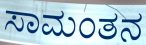
ಸಾಮಂತನ